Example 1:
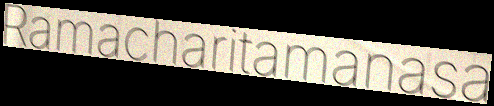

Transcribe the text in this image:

Ramacharitamanasa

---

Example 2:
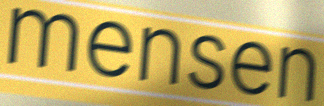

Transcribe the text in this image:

mensen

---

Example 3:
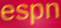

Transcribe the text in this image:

espn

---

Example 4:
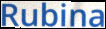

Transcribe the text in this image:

Rubina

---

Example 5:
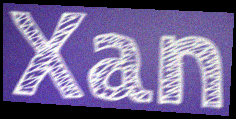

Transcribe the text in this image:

Xan